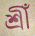
শ্ৰীঁ